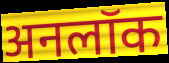
अनलॉक